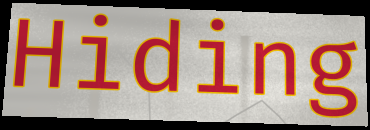
Hiding